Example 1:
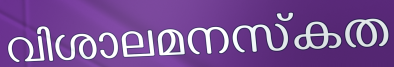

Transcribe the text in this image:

വിശാലമനസ്‌കത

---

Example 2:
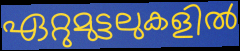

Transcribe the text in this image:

ഏറ്റുമുട്ടലുകളിൽ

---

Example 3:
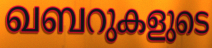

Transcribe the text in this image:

ഖബറുകളുടെ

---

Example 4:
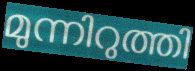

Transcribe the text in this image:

മുന്നിറുത്തി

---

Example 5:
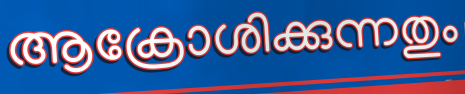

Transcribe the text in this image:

ആക്രോശിക്കുന്നതും